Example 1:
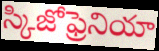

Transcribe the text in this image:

స్కిజోఫ్రెనియా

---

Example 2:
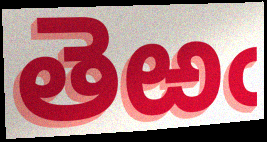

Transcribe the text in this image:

తెఱఁ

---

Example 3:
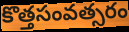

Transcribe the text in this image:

కొత్తసంవత్సరం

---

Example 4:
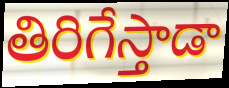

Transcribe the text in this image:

తిరిగేస్తాడా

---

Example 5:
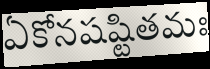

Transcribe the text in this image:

ఏకోనషష్టితమః